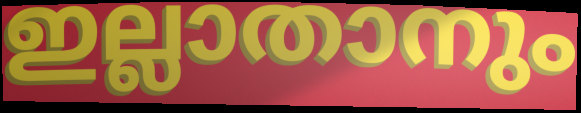
ഇല്ലാതാനും